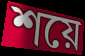
শয়ে